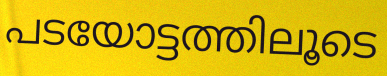
പടയോട്ടത്തിലൂടെ